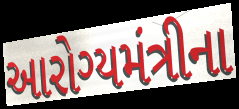
આરોગ્યમંત્રીના